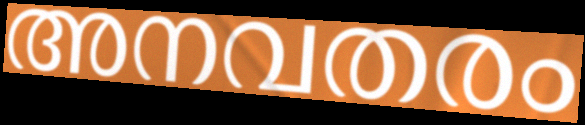
അനവതരം